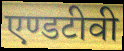
एण्डटीवी